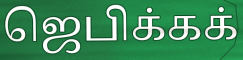
ஜெபிக்கக்